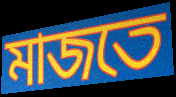
মাজতে